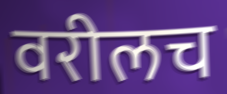
वरीलच